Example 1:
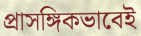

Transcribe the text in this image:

প্রাসঙ্গিকভাবেই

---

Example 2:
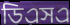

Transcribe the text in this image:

ডিএসএ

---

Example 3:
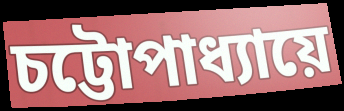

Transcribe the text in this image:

চট্টোপাধ্যায়ে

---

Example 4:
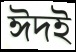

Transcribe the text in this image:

ঈদই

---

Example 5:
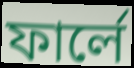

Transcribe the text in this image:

ফার্লে